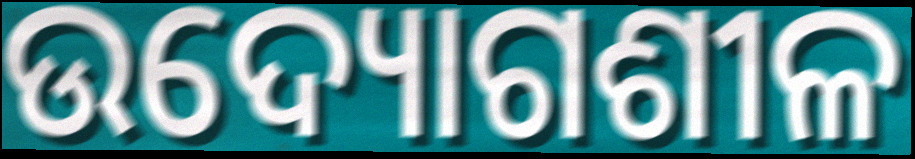
ଉଦ୍ୟୋଗଶୀଳ